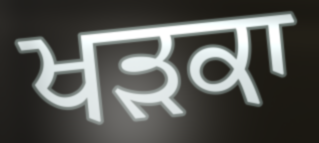
ਖੜਕਾ